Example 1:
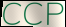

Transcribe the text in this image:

CCP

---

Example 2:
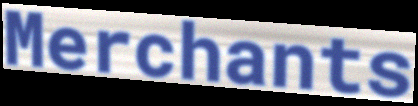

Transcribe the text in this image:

Merchants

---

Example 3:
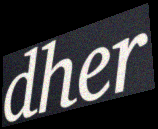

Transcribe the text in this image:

dher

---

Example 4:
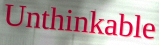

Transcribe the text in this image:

Unthinkable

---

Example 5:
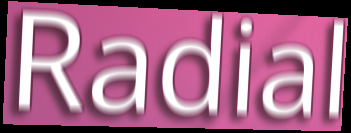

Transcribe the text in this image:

Radial